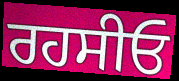
ਰਹਸੀਓ